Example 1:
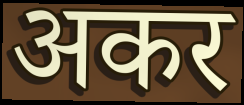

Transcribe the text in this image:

अकर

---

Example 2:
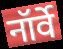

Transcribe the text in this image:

नॉर्वे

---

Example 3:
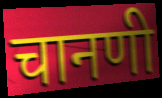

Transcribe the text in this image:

चानणी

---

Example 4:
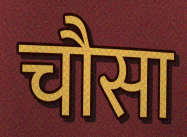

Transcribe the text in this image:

चौसा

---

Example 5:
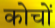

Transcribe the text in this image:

कोचों